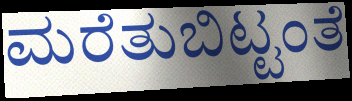
ಮರೆತುಬಿಟ್ಟಂತೆ